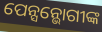
ପେନ୍ସନ୍ଭୋଗୀଙ୍କ